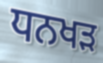
ਧਨਖੜ